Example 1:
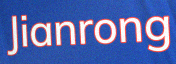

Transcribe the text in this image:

Jianrong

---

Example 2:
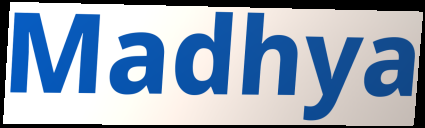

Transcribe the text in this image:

Madhya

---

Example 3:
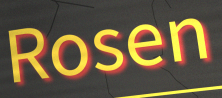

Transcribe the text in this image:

Rosen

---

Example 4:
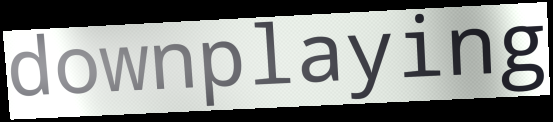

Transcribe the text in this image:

downplaying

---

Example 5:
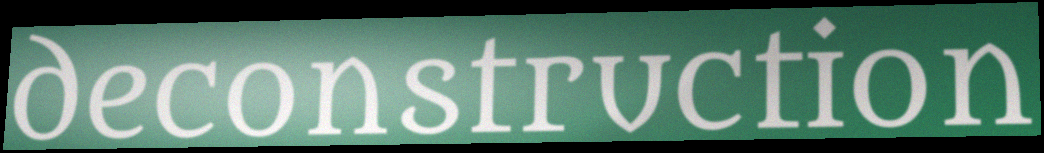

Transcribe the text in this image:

deconstruction